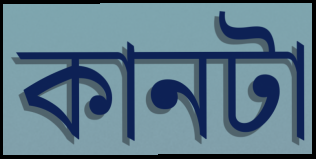
কানটা